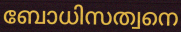
ബോധിസത്വനെ